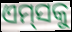
ଏମ୍‌ସକୁ